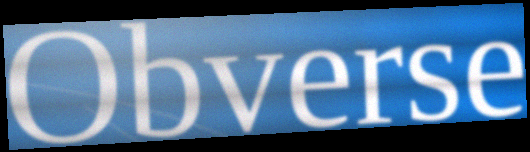
Obverse